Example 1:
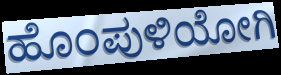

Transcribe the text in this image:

ಹೊಂಪುಳಿಯೋಗಿ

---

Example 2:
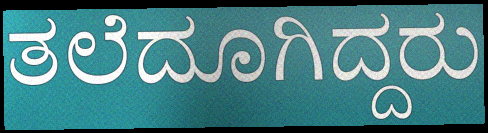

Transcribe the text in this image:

ತಲೆದೂಗಿದ್ದರು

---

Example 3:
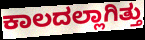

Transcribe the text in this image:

ಕಾಲದಲ್ಲಾಗಿತ್ತು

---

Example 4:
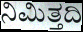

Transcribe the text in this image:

ನಿಮಿತ್ತದಿ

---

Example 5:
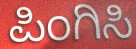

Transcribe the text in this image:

ಪಿಂಗಿಸಿ